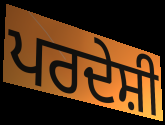
ਪਰਦੇਸ਼ੀ